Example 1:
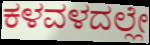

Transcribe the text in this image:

ಕಳವಳದಲ್ಲೇ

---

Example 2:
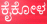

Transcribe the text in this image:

ಕೈಕೋಳ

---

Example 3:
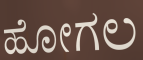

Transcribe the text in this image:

ಹೋಗಲ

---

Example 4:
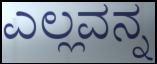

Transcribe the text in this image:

ಎಲ್ಲವನ್ನ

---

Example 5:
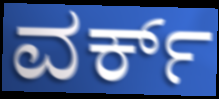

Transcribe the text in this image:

ವರ್ಕ್